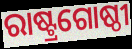
ରାଷ୍ଟ୍ରଗୋଷ୍ଠୀ